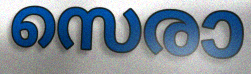
സെരാ